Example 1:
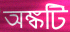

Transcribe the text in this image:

অঙ্কটি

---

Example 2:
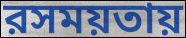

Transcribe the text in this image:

রসময়তায়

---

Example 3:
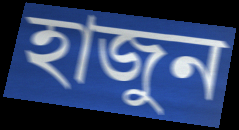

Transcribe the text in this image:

হাজুন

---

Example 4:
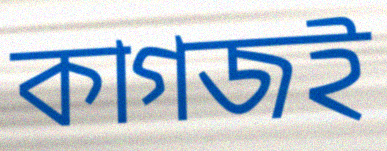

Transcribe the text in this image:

কাগজই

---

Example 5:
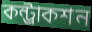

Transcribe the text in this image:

কন্ট্রাকশন